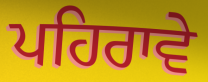
ਪਹਿਰਾਵੇ